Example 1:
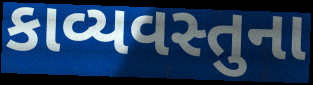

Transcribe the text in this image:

કાવ્યવસ્તુના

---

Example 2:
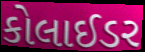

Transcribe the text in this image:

કોલાઈડર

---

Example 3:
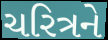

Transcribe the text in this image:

ચરિત્રને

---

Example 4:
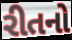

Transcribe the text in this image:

રીતનો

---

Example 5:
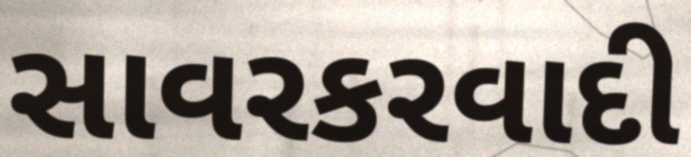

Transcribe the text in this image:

સાવરકરવાદી